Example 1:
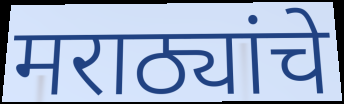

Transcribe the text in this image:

मराठ्यांचे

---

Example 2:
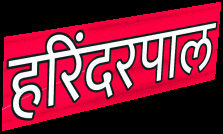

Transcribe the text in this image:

हरिंदरपाल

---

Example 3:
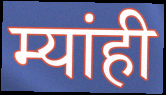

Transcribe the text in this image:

म्यांही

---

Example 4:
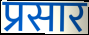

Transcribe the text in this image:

प्रसार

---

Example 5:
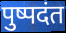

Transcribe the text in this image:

पुष्पदंत